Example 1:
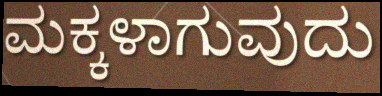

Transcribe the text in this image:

ಮಕ್ಕಳಾಗುವುದು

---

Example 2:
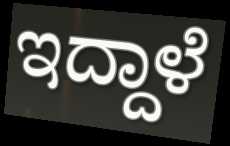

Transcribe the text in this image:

ಇದ್ದಾಳೆ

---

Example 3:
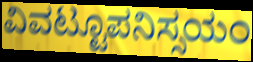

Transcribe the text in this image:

ವಿವಟ್ಟೂಪನಿಸ್ಸಯಂ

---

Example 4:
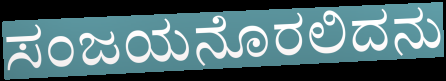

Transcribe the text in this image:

ಸಂಜಯನೊರಲಿದನು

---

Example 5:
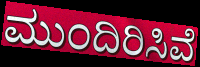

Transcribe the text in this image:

ಮುಂದಿರಿಸಿವೆ